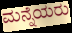
ಮನ್ನೆಯರು